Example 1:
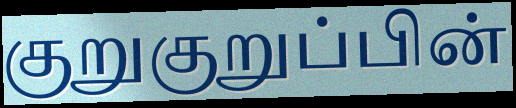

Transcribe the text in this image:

குறுகுறுப்பின்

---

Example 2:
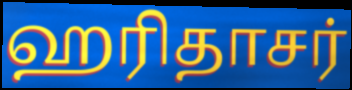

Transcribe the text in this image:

ஹரிதாசர்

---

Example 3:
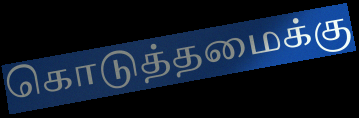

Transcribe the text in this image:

கொடுத்தமைக்கு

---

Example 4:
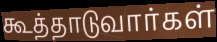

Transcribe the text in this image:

கூத்தாடுவார்கள்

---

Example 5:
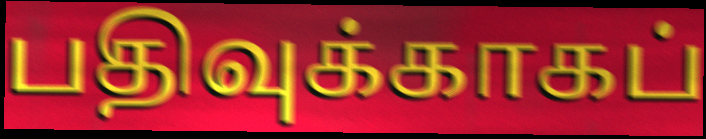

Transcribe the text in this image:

பதிவுக்காகப்